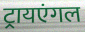
ट्रायएंगल